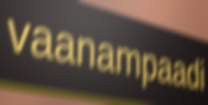
vaanampaadi